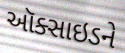
ઑક્સાઇડને